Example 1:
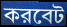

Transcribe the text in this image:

করবেট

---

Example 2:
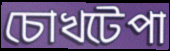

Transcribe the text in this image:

চোখটেপা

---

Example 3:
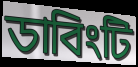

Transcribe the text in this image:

ডাবিংটি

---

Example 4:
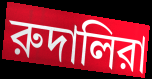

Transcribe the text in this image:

রুদালিরা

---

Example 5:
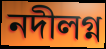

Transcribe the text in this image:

নদীলগ্ন